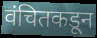
वंचितकडून